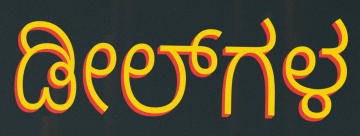
ಡೀಲ್‌ಗಳ